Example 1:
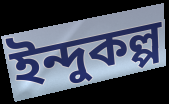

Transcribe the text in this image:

ইন্দুকল্প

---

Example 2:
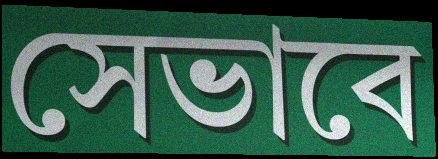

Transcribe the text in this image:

সেভাবে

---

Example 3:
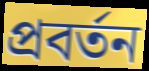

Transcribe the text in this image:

প্ৰবৰ্তন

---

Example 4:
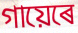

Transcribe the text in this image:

গায়েৰে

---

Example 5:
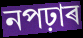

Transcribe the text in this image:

নপঢ়াৰ